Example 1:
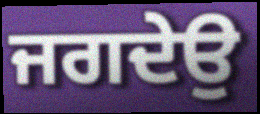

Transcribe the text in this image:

ਜਗਦੇਉ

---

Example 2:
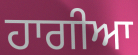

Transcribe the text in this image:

ਹਾਗੀਆ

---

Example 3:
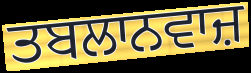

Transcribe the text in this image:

ਤਬਲਾਨਵਾਜ਼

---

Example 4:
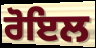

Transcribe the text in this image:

ਰੋਇਲ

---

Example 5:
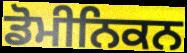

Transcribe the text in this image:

ਡੋਮੀਨਿਕਨ